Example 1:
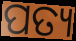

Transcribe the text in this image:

ପତ୍ୟ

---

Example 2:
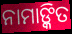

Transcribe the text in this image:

ନାମାଙ୍କିତ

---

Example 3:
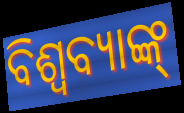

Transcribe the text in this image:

ବିଶ୍ବବ୍ୟାଙ୍କ୍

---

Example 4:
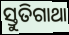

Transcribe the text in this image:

ସ୍ତୁତିଗାଥା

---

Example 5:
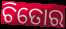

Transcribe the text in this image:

ଚିତୋର